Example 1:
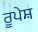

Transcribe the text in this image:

ਰੂਪੇਸ਼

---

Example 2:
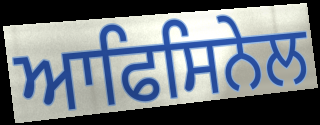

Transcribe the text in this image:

ਆਫਿਸਿਨੇਲ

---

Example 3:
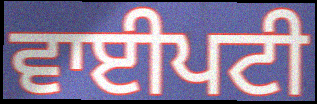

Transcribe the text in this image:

ਵਾਈਪਟੀ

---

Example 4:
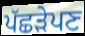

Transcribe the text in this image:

ਪੱਛੜੇਪਣ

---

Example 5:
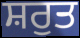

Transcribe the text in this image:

ਸ਼ਰੁਤ